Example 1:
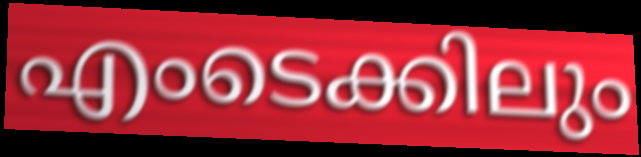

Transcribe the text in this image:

എംടെക്കിലും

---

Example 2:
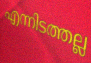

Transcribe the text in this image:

എന്നിടത്തല്ല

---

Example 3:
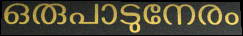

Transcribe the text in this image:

ഒരുപാടുനേരം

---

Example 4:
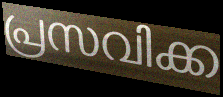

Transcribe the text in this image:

പ്രസവിക്ക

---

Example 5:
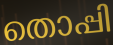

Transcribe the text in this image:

തൊപ്പി